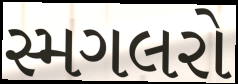
સ્મગલરો